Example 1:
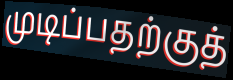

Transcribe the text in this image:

முடிப்பதற்குத்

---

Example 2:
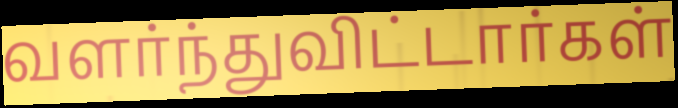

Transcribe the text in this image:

வளர்ந்துவிட்டார்கள்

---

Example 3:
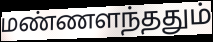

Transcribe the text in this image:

மண்ணளந்ததும்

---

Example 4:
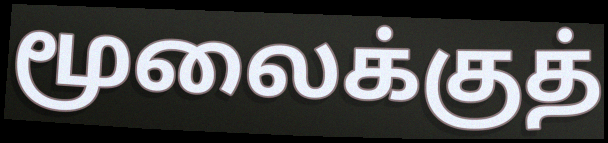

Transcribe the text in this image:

மூலைக்குத்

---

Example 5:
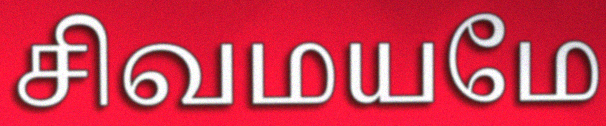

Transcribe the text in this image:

சிவமயமே